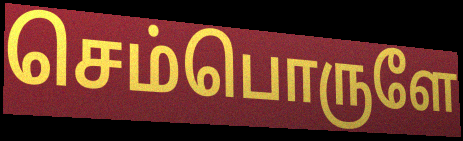
செம்பொருளே